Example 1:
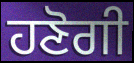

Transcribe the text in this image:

ਹਣੋਗੀ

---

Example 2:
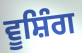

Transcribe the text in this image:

ਵੂਸ਼ਿੰਗ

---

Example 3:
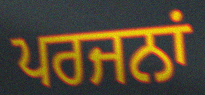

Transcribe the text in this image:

ਪਰਜਨਾਂ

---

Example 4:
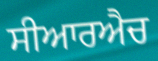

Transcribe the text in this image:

ਸੀਆਰਐਚ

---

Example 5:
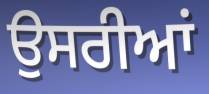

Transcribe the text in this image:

ਉਸਰੀਆਂ